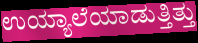
ಉಯ್ಯಾಲೆಯಾಡುತ್ತಿತ್ತು